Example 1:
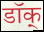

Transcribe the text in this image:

डॉक्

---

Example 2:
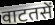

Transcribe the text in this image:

वाटतसें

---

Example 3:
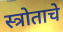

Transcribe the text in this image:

स्त्रोताचे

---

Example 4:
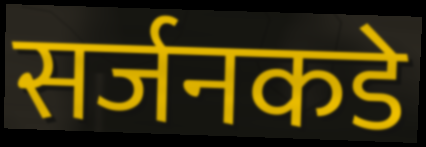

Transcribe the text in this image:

सर्जनकडे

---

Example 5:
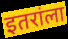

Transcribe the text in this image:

इतरांला